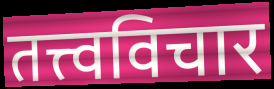
तत्त्वविचार